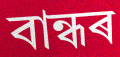
বান্ধৰ